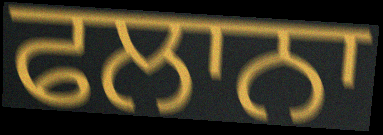
ਫਲਾਨਾ